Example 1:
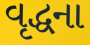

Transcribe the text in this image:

વૃદ્ધના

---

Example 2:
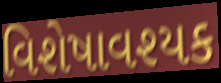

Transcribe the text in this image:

વિશેષાવશ્યક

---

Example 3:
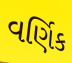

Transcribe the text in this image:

વર્ણિક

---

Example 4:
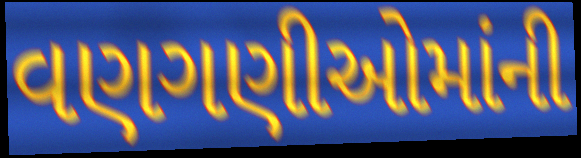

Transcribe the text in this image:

વણગણીઓમાંની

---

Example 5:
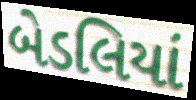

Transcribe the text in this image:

બેડલિયાં